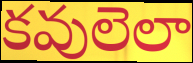
కవులెలా